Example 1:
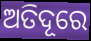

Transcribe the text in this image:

ଅତିଦୂରେ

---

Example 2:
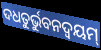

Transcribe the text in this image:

ଦଧତୁର୍ଭୁବନଦ୍ଵୟମ୍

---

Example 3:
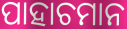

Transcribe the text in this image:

ପାହାଚମାନ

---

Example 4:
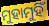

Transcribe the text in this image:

ମୁହାମୁହିଁ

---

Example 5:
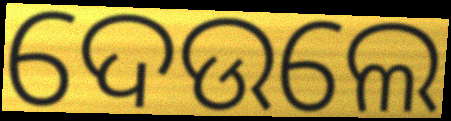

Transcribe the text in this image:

ଦେଉଲେ